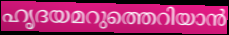
ഹൃദയമറുത്തെറിയാൻ